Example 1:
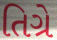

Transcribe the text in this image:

તિગ્રે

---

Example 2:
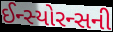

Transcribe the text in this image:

ઈન્સ્યોરન્સની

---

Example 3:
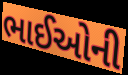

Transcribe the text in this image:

ભાઈઓની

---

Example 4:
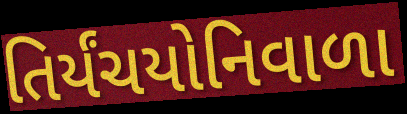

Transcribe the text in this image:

તિર્યંચયોનિવાળા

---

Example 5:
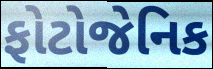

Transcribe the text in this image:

ફોટોજેનિક